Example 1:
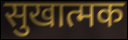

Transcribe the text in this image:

सुखात्मक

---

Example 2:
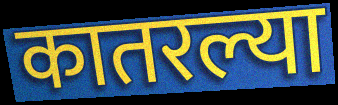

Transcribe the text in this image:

कातरल्या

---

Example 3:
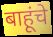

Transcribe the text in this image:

बाहूंचे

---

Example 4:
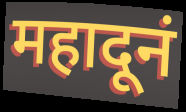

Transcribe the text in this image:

महादूनं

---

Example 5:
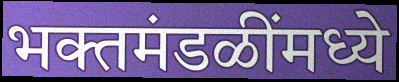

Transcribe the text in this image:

भक्तमंडळींमध्ये